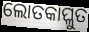
ଲୋତକାପ୍ଳୁତ